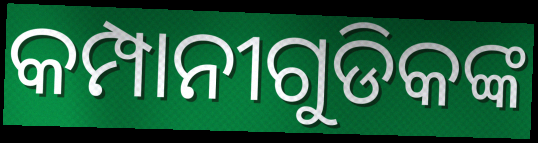
କମ୍ପାନୀଗୁଡିକଙ୍କ